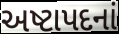
અષ્ટાપદનાં